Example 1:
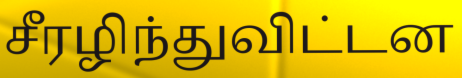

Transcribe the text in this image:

சீரழிந்துவிட்டன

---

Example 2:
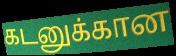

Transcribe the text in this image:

கடனுக்கான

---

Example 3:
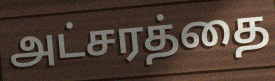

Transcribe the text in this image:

அட்சரத்தை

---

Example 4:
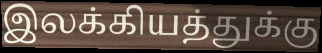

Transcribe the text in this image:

இலக்கியத்துக்கு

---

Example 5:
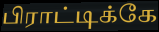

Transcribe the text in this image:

பிராட்டிக்கே